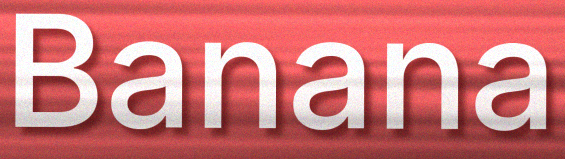
Banana